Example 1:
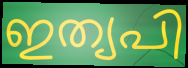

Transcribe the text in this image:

ഇത്യപി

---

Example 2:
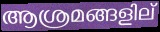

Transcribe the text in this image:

ആശ്രമങ്ങളില്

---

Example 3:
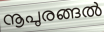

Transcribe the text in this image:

നൂപുരങ്ങൽ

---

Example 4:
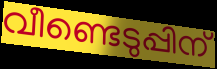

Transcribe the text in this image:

വീണ്ടെടുപ്പിന്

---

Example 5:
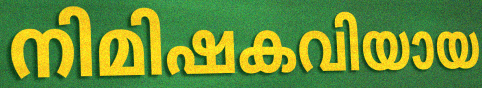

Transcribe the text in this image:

നിമിഷകവിയായ